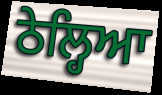
ਠੇਲ੍ਹਿਆ